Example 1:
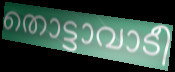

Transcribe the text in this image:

തൊട്ടാവാടീ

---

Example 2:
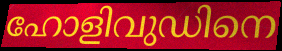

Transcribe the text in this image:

ഹോളിവുഡിനെ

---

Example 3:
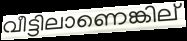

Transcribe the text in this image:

വീട്ടിലാണെങ്കില്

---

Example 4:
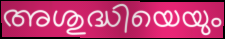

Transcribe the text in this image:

അശുദ്ധിയെയും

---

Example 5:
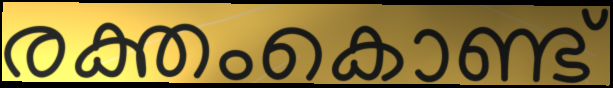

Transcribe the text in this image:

രക്തംകൊണ്ട്